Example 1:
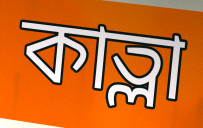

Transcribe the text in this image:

কাত্লা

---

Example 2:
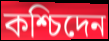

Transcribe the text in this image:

কশ্চিদেন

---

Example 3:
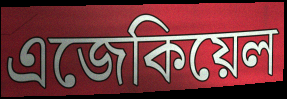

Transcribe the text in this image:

এজেকিয়েল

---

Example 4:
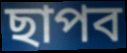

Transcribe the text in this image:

ছাপব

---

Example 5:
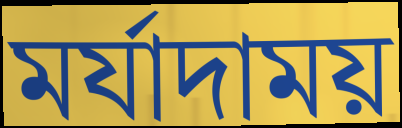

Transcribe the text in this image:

মর্যাদাময়